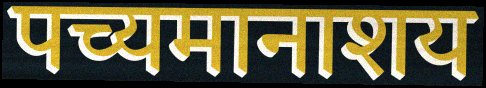
पच्यमानाशय